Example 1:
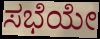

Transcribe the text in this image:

ಸಭೆಯೇ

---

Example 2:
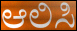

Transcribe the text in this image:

ಆಲಿಸಿ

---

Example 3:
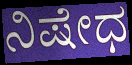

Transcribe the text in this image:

ನಿಷೇಧ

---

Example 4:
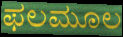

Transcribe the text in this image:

ಫಲಮೂಲ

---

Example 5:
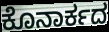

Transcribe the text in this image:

ಕೊನಾರ್ಕದ